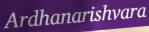
Ardhanarishvara